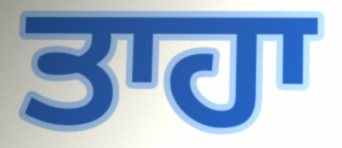
ਤਾਹਾ